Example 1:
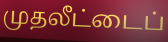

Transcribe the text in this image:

முதலீட்டைப்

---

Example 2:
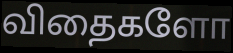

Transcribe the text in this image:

விதைகளோ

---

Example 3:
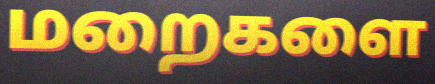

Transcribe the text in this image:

மறைகளை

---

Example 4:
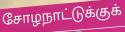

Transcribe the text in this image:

சோழநாட்டுக்குக்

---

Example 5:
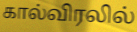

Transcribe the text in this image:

கால்விரலில்